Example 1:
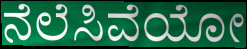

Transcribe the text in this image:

ನೆಲೆಸಿವೆಯೋ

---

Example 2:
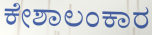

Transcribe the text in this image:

ಕೇಶಾಲಂಕಾರ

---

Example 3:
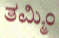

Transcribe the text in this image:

ತಮ್ಮಿಂ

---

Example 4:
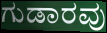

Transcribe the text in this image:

ಗುಡಾರವು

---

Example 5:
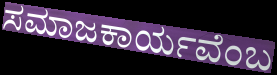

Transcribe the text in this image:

ಸಮಾಜಕಾರ್ಯವೆಂಬ